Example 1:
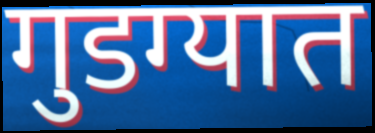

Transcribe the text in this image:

गुडग्यात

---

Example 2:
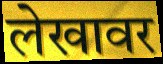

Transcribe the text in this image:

लेखावर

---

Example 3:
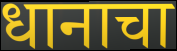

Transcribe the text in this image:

धानाचा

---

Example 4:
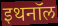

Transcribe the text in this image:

इथनॉल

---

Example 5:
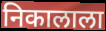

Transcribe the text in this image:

निकालाला